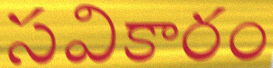
సవికారం